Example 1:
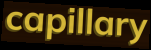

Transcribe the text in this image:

capillary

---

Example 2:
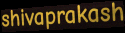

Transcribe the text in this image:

shivaprakash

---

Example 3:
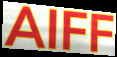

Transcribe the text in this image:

AIFF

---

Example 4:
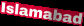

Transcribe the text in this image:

Islamabad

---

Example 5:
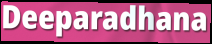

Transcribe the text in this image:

Deeparadhana